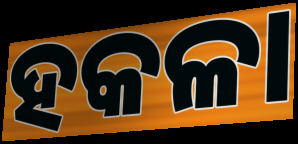
ହକଳା